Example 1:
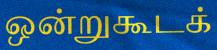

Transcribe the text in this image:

ஒன்றுகூடக்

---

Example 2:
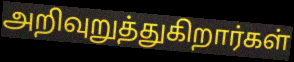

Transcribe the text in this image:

அறிவுறுத்துகிறார்கள்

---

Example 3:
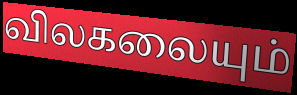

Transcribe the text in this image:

விலகலையும்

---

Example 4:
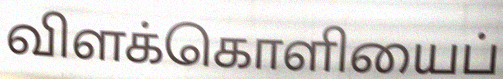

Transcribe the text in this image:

விளக்கொளியைப்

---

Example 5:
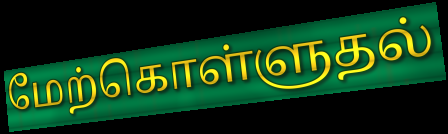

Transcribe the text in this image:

மேற்கொள்ளுதல்